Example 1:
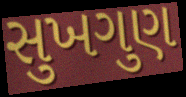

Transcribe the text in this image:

સુખગુણ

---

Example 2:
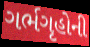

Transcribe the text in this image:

ગર્ભગૃહોની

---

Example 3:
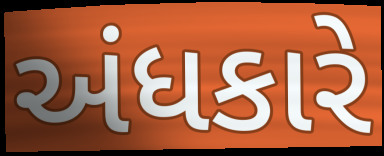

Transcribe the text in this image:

અંધકારે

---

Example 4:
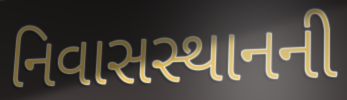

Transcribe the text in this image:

નિવાસસ્થાનની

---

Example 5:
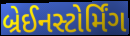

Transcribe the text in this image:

બ્રેઈનસ્ટોર્મિંગ